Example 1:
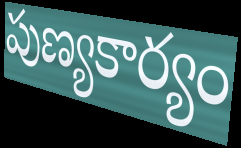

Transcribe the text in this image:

పుణ్యకార్యం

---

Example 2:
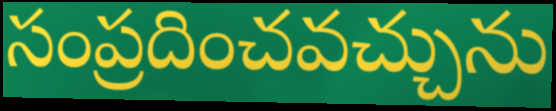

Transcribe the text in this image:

సంప్రదించవచ్చును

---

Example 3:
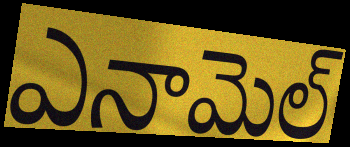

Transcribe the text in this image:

ఎనామెల్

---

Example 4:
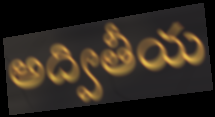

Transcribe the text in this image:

అద్వితీయ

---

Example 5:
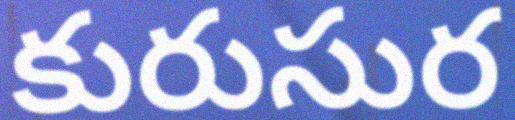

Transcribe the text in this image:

కురుసుర